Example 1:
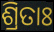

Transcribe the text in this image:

ଶ୍ରିତାଃ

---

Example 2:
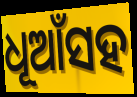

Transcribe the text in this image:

ଧୂଆଁସହ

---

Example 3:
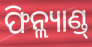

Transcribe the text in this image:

ଫିନ୍ଲ୍ୟାଣ୍ଡ୍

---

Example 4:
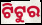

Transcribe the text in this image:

ଟିଟୁର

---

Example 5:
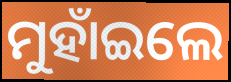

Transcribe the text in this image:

ମୁହାଁଇଲେ